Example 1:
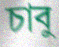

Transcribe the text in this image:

চাবু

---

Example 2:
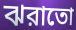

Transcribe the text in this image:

ঝরাতো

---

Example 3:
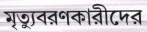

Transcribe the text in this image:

মৃত্যুবরণকারীদের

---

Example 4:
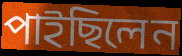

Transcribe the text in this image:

পাইছিলেন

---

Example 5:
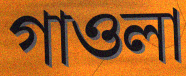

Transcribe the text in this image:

গাওলা